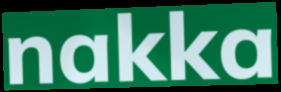
nakka